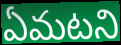
ఏమటని